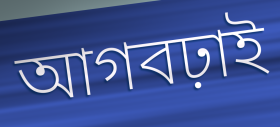
আগবঢ়াই